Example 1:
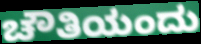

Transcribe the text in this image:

ಚೌತಿಯಂದು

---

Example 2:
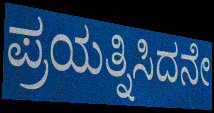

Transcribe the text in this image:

ಪ್ರಯತ್ನಿಸಿದನೇ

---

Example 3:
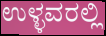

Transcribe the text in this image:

ಉಳ್ಳವರಲ್ಲಿ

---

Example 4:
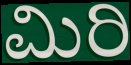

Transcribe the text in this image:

ಮಿರಿ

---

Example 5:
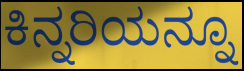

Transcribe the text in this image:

ಕಿನ್ನರಿಯನ್ನೂ